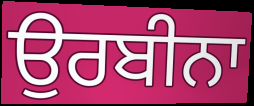
ਉਰਬੀਨਾ